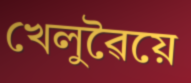
খেলুৱৈয়ে